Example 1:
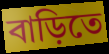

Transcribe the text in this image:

বাড়িতে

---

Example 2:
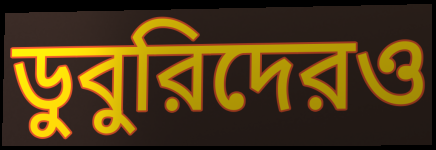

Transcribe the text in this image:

ডুবুরিদেরও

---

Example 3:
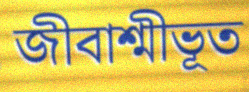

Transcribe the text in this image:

জীবাশ্মীভূত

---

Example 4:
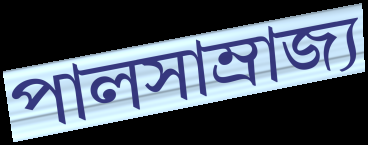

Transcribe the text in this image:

পালসাম্রাজ্য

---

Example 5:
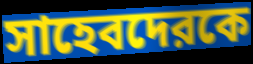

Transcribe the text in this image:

সাহেবদেরকে